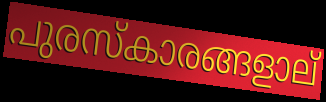
പുരസ്കാരങ്ങളാല്